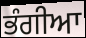
ਭੰਗੀਆ